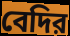
বেদির